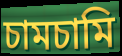
চামচামি